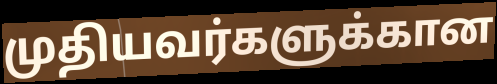
முதியவர்களுக்கான